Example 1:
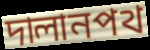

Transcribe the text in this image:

দালানপথ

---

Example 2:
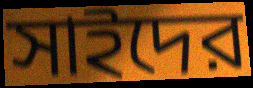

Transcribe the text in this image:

সাইদের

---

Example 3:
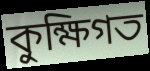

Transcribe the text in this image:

কুক্ষিগত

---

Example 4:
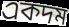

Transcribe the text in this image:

একদম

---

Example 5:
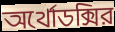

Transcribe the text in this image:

অর্থোডক্সির